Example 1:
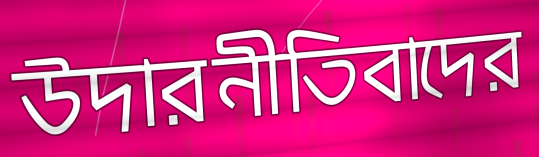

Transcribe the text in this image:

উদারনীতিবাদের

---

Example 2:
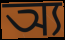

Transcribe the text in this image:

অ্য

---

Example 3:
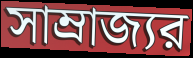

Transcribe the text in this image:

সাম্রাজ্যর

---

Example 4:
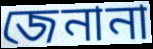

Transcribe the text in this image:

জেনানা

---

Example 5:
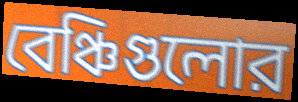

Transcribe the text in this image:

বেঞ্চিগুলোর